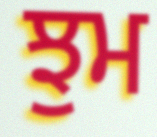
ਝੁਮ